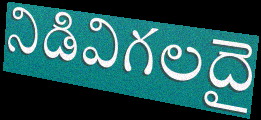
నిడివిగలదై